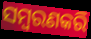
ସମ୍ବରଣକରି